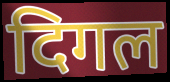
दिगल